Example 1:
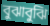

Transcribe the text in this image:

বুঝাবুঝি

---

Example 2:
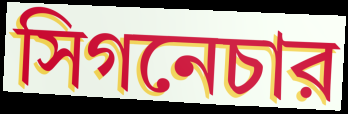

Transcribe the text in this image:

সিগনেচার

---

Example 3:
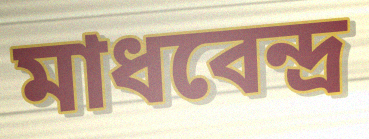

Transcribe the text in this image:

মাধবেন্দ্র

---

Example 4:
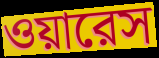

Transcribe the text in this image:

ওয়ারেস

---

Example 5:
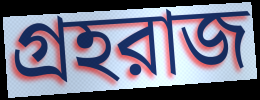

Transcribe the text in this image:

গ্রহরাজ